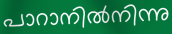
പാറാനിൽനിന്നു